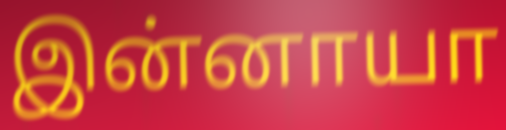
இன்னாயா